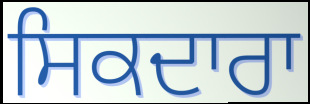
ਸਿਕਦਾਰਾ